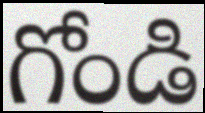
గోండి